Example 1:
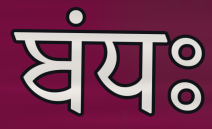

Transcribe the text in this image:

ਬਂਧਃ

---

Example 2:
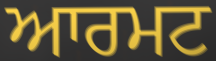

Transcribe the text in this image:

ਆਰਮਟ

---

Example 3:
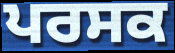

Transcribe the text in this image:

ਪਰਸਕ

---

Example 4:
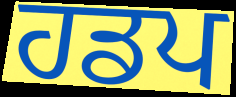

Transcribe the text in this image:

ਹਡਪ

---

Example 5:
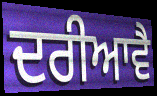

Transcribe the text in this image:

ਦਰੀਆਵੈ